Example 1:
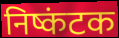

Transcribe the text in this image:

निष्कंटक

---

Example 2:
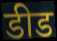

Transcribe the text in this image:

डीड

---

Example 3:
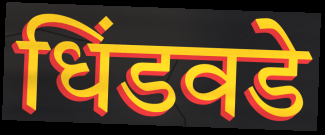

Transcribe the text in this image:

धिंडवडे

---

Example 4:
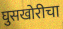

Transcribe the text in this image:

घुसखोरीचा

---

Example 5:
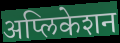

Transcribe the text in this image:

अप्लिकेशन